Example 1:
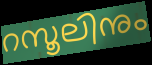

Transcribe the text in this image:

റസൂലിനും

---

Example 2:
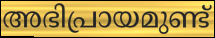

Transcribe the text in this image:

അഭിപ്രായമുണ്ട്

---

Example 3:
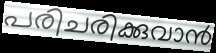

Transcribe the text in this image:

പരിചരിക്കുവാൻ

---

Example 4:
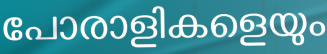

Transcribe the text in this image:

പോരാളികളെയും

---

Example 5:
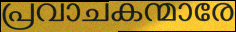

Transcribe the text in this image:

പ്രവാചകന്മാരേ